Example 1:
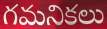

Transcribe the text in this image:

గమనికలు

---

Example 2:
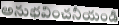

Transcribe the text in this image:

అనుభవించనీయండి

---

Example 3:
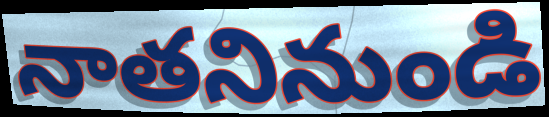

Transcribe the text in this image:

నాతనినుండి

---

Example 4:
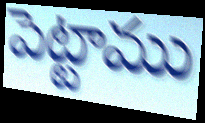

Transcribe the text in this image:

పెట్టాము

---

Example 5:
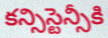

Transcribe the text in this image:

కన్సిస్టెన్సీకి